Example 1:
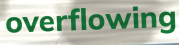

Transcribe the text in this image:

overflowing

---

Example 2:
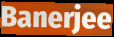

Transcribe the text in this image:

Banerjee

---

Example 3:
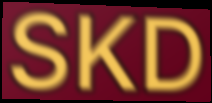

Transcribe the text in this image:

SKD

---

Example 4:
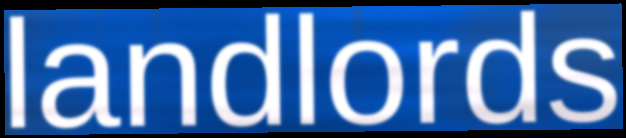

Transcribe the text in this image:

landlords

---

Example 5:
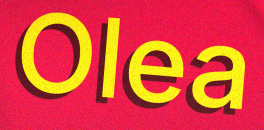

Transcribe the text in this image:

Olea